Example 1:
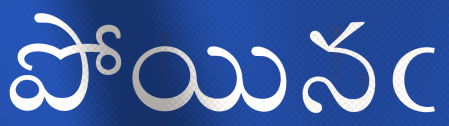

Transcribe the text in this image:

పోయినఁ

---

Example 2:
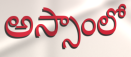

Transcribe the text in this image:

అస్సాంలో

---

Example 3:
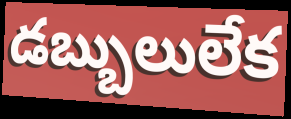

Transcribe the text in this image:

డబ్బులులేక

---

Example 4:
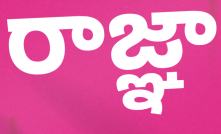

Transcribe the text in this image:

రాజ్ఞా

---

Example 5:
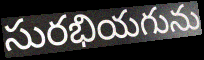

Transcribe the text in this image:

సురభియగును